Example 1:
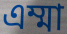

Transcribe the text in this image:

এম্মা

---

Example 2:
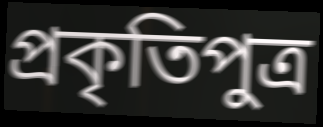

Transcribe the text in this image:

প্রকৃতিপুত্র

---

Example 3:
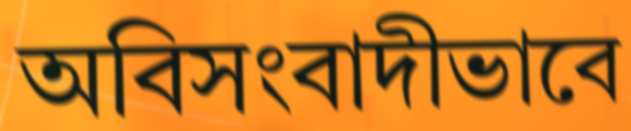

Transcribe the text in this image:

অবিসংবাদীভাবে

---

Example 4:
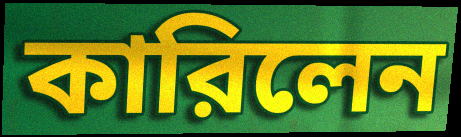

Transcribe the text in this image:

কারিলেন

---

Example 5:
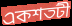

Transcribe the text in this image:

একশতটী